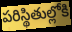
పరిస్థితుల్లోకి